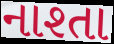
નાશ્તા